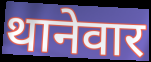
थानेवार